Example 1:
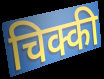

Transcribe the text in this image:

चिक्की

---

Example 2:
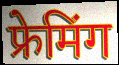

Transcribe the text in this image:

फ्रेमिंग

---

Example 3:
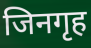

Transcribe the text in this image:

जिनगृह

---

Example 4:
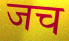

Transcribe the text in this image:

जच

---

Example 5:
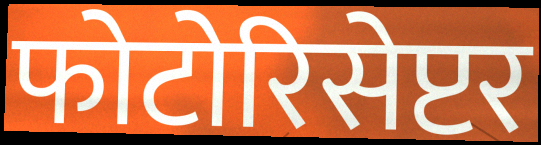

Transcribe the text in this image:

फोटोरिसेप्टर